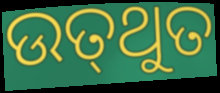
ଉତ୍‌ଥୁତ